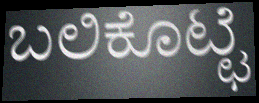
ಬಲಿಕೊಟ್ಟೆ